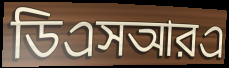
ডিএসআরএ